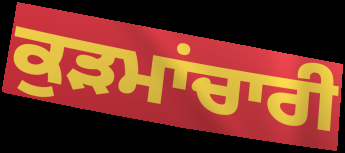
ਕੁੜਮਾਂਚਾਰੀ